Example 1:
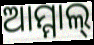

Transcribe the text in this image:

ଆମ୍ମାଲ୍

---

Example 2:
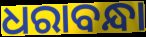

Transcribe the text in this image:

ଧରାବନ୍ଧା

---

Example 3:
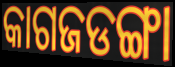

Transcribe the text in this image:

କାଗଜଡଙ୍ଗା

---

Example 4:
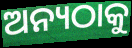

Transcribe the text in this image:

ଅନ୍ୟଠାକୁ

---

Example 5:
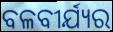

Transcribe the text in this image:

ବଳବୀର୍ଯ୍ୟର